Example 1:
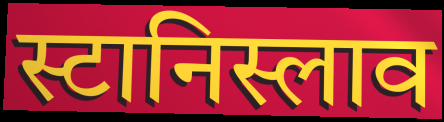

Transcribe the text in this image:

स्टानिस्लाव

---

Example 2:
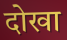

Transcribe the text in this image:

दोखा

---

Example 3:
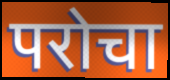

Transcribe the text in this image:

परोचा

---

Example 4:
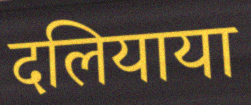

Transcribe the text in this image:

दलियाया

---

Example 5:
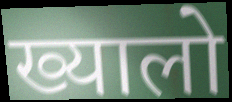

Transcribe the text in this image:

ख्यालो